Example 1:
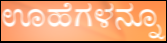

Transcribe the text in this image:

ಊಹೆಗಳನ್ನೂ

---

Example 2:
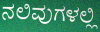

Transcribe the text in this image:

ನಲಿವುಗಳಲ್ಲಿ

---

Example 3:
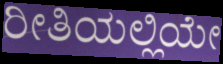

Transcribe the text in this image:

ರೀತಿಯಲ್ಲಿಯೇ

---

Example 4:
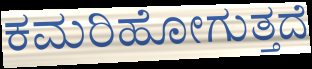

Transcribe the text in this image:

ಕಮರಿಹೋಗುತ್ತದೆ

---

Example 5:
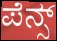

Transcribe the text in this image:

ಪೆನ್ಸ್